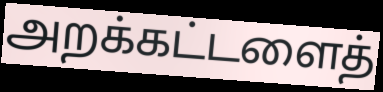
அறக்கட்டளைத்